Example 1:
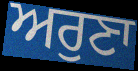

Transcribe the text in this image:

ਅਰੁਣਾ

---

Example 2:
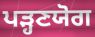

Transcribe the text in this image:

ਪੜ੍ਹਣਯੋਗ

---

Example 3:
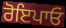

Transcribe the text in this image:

ਰੋਇਪਾਓ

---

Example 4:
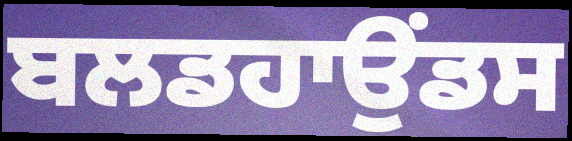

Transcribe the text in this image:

ਬਲਡਹਾਉਂਡਸ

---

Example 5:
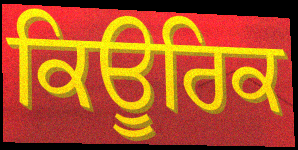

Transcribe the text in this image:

ਕਿਊਰਿਕ